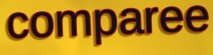
comparee